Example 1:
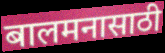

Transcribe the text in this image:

बालमनासाठी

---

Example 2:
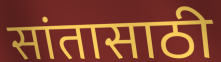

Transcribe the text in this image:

सांतासाठी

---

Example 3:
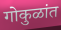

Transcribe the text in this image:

गोकुळांत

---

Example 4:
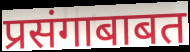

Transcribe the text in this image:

प्रसंगाबाबत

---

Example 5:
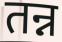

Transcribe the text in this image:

तन्न